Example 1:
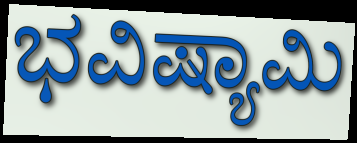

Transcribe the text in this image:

ಭವಿಷ್ಯಾಮಿ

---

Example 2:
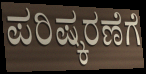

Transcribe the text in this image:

ಪರಿಷ್ಕರಣೆಗೆ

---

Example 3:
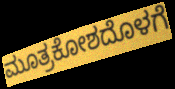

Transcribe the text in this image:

ಮೂತ್ರಕೋಶದೊಳಗೆ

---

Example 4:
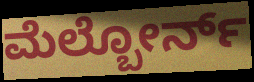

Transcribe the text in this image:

ಮೆಲ್ಬೋರ್ನ್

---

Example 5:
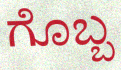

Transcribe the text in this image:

ಗೊಬ್ಬ